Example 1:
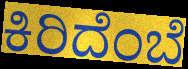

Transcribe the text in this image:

ಕಿರಿದೆಂಬೆ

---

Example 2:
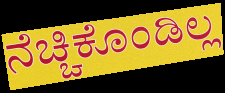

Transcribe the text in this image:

ನೆಚ್ಚಿಕೊಂಡಿಲ್ಲ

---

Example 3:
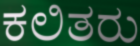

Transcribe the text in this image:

ಕಲಿತರು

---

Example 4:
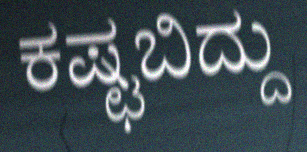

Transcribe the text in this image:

ಕಷ್ಟಬಿದ್ದು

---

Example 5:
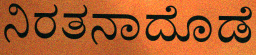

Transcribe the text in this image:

ನಿರತನಾದೊಡೆ